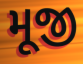
મૂજી